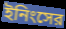
ইনিংসের